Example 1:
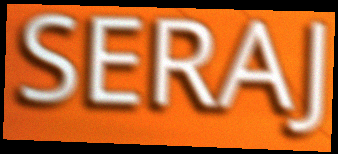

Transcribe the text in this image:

SERAJ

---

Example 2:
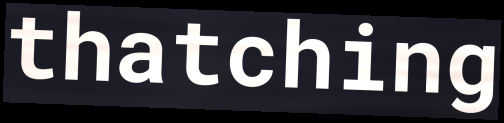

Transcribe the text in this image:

thatching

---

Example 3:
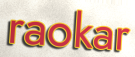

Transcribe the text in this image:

raokar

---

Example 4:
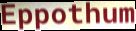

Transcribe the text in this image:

Eppothum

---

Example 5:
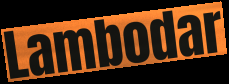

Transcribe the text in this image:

Lambodar